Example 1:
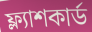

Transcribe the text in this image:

ফ্ল্যাশকার্ড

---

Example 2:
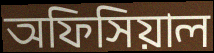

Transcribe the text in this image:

অফিসিয়াল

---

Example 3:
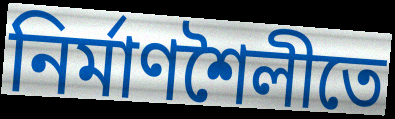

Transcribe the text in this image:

নির্মাণশৈলীতে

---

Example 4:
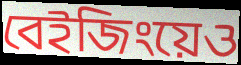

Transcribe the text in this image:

বেইজিংয়েও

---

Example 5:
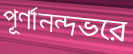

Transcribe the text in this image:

পূর্ণানন্দভরে